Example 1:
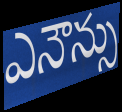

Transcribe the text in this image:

ఎనౌన్సు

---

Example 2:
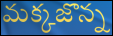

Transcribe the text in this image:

మక్కజొన్న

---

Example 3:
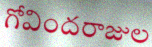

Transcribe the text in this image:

గోవిందరాజుల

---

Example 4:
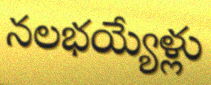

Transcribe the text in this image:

నలభయ్యేళ్లు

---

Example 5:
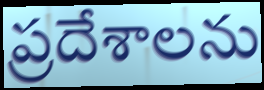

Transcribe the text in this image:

ప్రదేశాలను